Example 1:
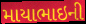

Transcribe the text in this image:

માયાભાઇની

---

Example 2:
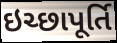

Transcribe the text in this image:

ઇચ્છાપૂર્તિ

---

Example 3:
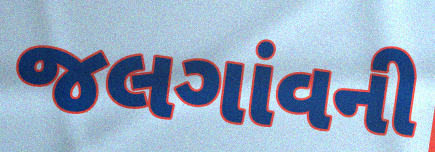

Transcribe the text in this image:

જલગાંવની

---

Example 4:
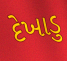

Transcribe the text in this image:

દેખાડુ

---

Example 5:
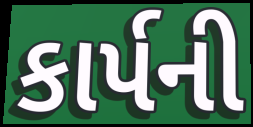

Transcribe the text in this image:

કાર્પની